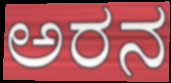
ಅರನ